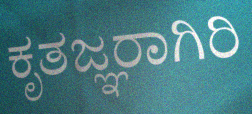
ಕೃತಜ್ಞರಾಗಿರಿ